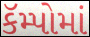
કૅમ્પોમાં